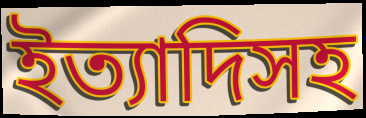
ইত্যাদিসহ